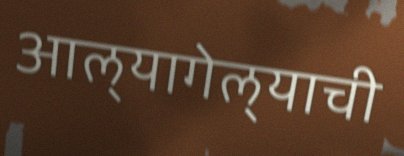
आल्यागेल्याची